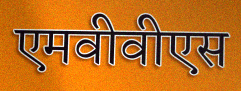
एमवीवीएस